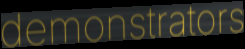
demonstrators